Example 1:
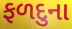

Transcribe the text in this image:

ફળદુના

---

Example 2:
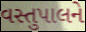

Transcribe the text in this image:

વસ્તુપાલને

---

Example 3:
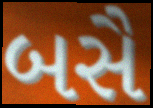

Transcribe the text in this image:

બસૈ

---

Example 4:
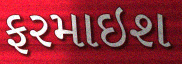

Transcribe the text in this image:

ફરમાઇશ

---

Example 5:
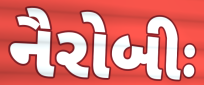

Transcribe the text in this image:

નૈરોબીઃ